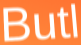
Butl